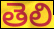
తెలి